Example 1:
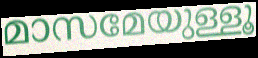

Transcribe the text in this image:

മാസമേയുള്ളൂ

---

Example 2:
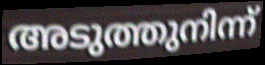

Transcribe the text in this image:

അടുത്തുനിന്ന്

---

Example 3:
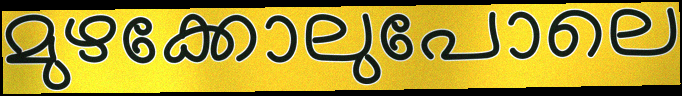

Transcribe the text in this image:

മുഴക്കോലുപോലെ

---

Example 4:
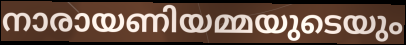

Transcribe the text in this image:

നാരായണിയമ്മയുടെയും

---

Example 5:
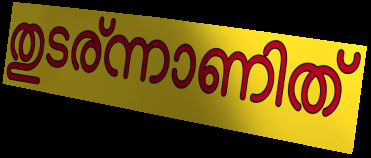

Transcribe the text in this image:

തുടര്ന്നാണിത്